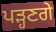
ਪੜ੍ਹਣਗੇ